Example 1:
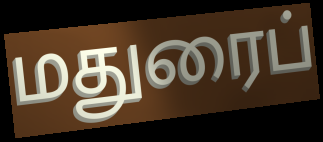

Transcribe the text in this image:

மதுரைப்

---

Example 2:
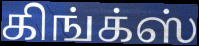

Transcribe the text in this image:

கிங்க்ஸ்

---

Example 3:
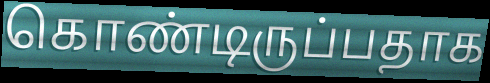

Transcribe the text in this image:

கொண்டிருப்பதாக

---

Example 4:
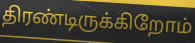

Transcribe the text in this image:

திரண்டிருக்கிறோம்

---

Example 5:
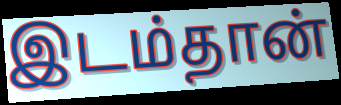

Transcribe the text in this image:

இடம்தான்